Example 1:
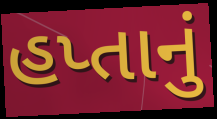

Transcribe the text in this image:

હપ્તાનું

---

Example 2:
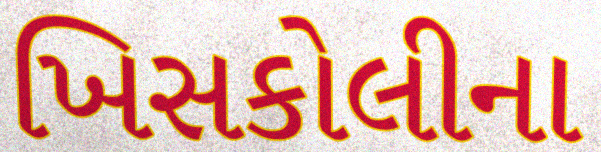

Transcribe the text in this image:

ખિસકોલીના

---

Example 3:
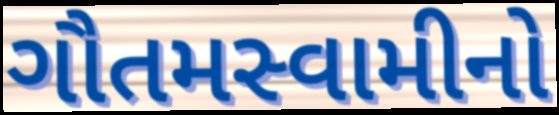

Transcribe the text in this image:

ગૌતમસ્વામીનો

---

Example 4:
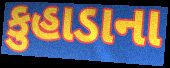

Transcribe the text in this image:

કુહાડાના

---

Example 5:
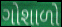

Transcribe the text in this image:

ગોશાળો